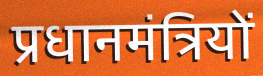
प्रधानमंत्रियों